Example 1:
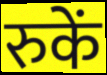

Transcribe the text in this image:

रुकें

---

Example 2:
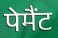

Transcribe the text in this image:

पेमैंट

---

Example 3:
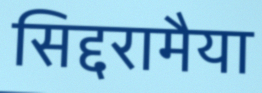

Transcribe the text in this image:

सिद्दरामैया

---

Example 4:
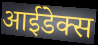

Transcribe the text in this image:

आईडेक्स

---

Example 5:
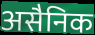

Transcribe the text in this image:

असैनिक